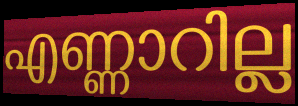
എണ്ണാറില്ല